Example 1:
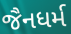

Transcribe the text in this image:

જૈનધર્મ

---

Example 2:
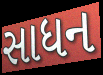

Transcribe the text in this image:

સાધન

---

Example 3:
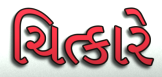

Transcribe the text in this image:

ચિત્કારે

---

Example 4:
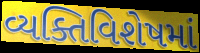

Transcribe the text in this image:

વ્યક્તિવિશેષમાં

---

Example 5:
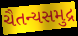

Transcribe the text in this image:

ચૈતન્યસમુદ્ર